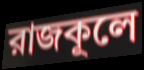
রাজকূলে